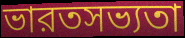
ভারতসভ্যতা